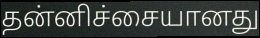
தன்னிச்சையானது